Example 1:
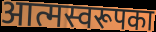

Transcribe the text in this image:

आत्मस्वरूपका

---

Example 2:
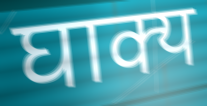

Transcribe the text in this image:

घाक्य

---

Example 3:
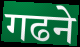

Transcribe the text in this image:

गढने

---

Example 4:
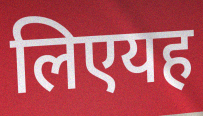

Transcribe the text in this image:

लिएयह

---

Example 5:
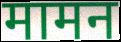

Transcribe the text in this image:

मामन